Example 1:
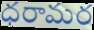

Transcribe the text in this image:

ధరామర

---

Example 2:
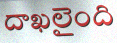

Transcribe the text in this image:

దాఖలైంది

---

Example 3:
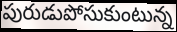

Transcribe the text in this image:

పురుడుపోసుకుంటున్న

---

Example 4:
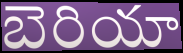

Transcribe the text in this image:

బెరియా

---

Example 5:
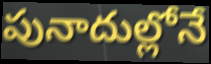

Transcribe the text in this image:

పునాదుల్లోనే